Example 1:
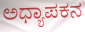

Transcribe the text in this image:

ಅಧ್ಯಾಪಕನ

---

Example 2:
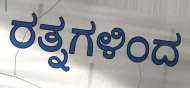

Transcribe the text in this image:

ರತ್ನಗಳಿಂದ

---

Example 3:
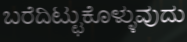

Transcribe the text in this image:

ಬರೆದಿಟ್ಟುಕೊಳ್ಳುವುದು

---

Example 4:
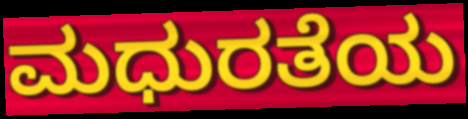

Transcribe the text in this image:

ಮಧುರತೆಯ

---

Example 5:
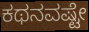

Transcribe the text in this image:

ಕಥನವಷ್ಟೇ